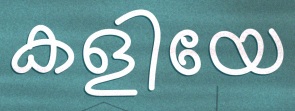
കളിയേ